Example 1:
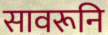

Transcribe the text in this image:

सावरूनि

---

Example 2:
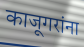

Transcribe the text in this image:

काजूगरांना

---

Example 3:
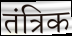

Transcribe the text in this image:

तंत्रिक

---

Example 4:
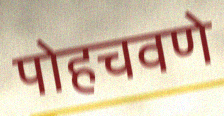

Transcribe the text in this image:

पोहचवणे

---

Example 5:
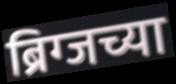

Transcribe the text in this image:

ब्रिग्जच्या